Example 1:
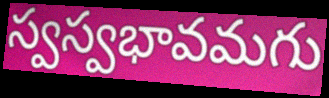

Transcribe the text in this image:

స్వస్వభావమగు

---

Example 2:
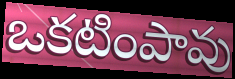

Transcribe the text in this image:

ఒకటింపావు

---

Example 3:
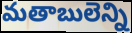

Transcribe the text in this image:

మతాబులెన్ని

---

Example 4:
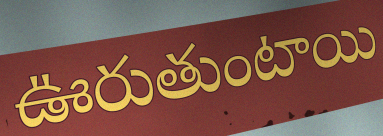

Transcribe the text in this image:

ఊరుతుంటాయి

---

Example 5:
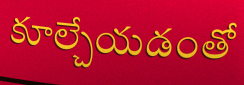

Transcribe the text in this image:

కూల్చేయడంతో